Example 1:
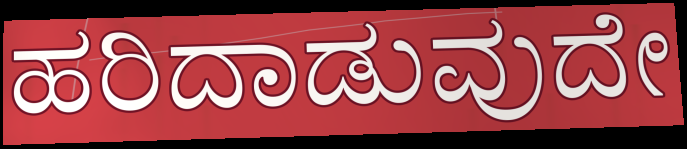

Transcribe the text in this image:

ಹರಿದಾಡುವುದೇ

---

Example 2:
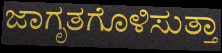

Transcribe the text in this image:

ಜಾಗೃತಗೊಳಿಸುತ್ತಾ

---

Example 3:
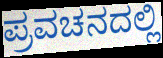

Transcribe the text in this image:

ಪ್ರವಚನದಲ್ಲಿ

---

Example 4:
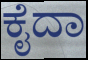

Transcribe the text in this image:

ಕೈದಾ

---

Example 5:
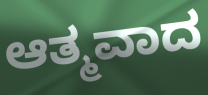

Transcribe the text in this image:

ಆತ್ಮವಾದ